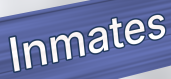
Inmates